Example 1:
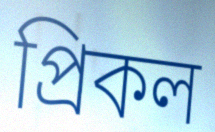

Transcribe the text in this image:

প্রিকল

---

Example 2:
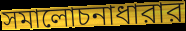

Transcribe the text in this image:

সমালোচনাধারার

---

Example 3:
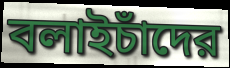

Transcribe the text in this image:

বলাইচাঁদের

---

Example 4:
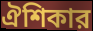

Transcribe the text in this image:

ঐশিকার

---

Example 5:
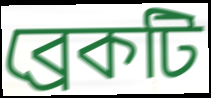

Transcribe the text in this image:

ব্রেকটি